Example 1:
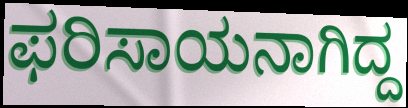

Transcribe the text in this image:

ಫರಿಸಾಯನಾಗಿದ್ದ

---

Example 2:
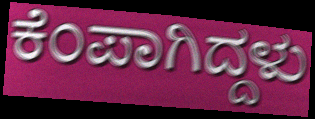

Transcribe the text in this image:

ಕೆಂಪಾಗಿದ್ದಳು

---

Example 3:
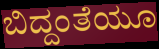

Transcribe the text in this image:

ಬಿದ್ದಂತೆಯೂ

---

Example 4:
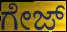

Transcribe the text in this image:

ಗೇಜ್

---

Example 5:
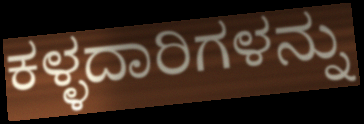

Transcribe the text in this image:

ಕಳ್ಳದಾರಿಗಳನ್ನು